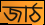
জাঠ